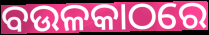
ବଉଳକାଠରେ